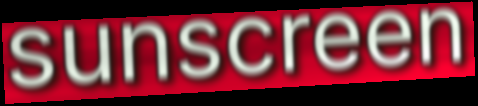
sunscreen